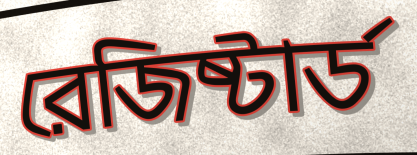
রেজিষ্টার্ড